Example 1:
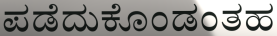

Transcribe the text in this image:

ಪಡೆದುಕೊಂಡಂತಹ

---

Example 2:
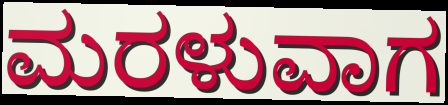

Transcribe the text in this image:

ಮರಳುವಾಗ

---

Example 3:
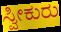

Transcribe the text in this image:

ಸ್ವೀಕುರು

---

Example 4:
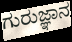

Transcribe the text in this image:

ಗುರುಜ್ಞಾನ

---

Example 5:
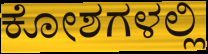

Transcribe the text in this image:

ಕೋಶಗಳಲ್ಲಿ